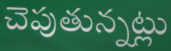
చెపుతున్నట్లు